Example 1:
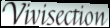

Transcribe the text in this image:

Vivisection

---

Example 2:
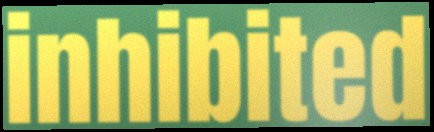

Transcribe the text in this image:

inhibited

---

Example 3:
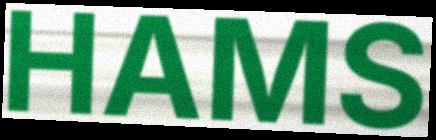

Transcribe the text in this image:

HAMS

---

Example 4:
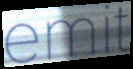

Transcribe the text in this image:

emit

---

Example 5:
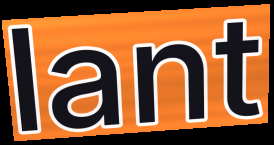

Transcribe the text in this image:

lant